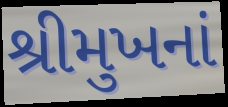
શ્રીમુખનાં